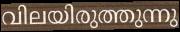
വിലയിരുത്തുന്നു